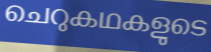
ചെറുകഥകളുടെ